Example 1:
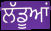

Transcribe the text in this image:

ਲੱਡੂਆਂ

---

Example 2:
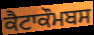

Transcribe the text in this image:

ਕੈਟਾਕੌਮਬਸ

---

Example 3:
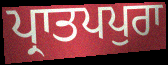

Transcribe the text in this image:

ਪ੍ਰਾਤਪਪੁਰਾ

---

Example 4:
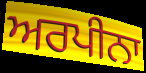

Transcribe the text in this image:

ਅਰਪੀਨਾ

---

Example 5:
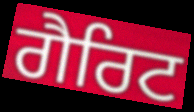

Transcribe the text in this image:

ਗੈਰਿਟ